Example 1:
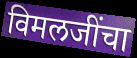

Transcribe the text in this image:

विमलजींचा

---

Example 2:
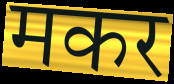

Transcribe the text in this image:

मकर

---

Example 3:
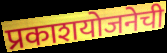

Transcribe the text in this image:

प्रकाशयोजनेची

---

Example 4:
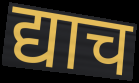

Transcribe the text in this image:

द्याच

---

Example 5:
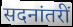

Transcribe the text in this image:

सदनांतरीं